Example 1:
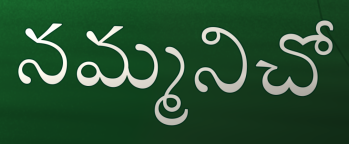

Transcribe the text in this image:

నమ్మనిచో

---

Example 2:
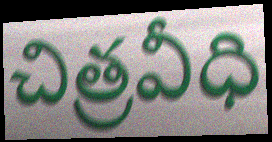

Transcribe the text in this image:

చిత్రవీధి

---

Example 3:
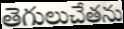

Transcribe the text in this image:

తెగులుచేతను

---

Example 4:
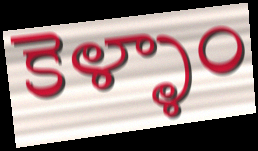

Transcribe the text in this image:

కెళ్ళాం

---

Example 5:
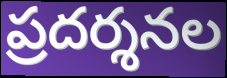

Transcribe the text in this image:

ప్రదర్శనల